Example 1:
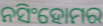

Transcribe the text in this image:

ନସିଂହୋମର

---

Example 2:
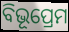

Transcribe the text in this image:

ବିଭୂପ୍ରେମ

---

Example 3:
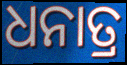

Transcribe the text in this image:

ଧନାତ୍ର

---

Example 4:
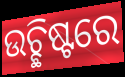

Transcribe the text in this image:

ଉଚ୍ଛିଷ୍ଟରେ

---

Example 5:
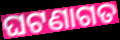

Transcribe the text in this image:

ଘଟଣାଗତ